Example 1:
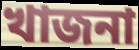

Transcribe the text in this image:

খাজনা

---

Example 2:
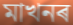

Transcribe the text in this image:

মাখনৰ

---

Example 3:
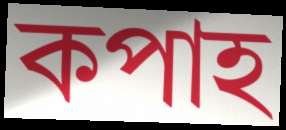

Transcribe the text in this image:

কপাহ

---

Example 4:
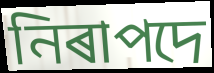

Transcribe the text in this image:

নিৰাপদে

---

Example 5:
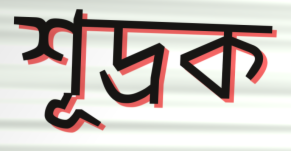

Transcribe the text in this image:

শূদ্ৰক